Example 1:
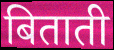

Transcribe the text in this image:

बिताती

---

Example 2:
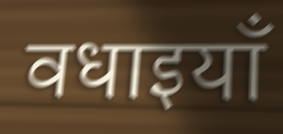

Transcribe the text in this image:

वधाइयाँ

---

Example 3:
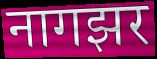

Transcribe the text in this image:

नागझर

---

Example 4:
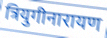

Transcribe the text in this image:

त्रियुगीनारायण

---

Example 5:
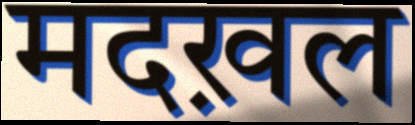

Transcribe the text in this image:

मदख़ल